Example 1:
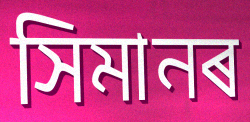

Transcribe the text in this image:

সিমানৰ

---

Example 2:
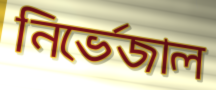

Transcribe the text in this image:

নিৰ্ভেজাল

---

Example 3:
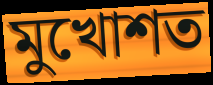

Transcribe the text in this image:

মুখোশত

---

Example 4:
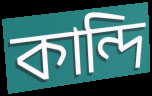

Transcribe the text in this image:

কান্দি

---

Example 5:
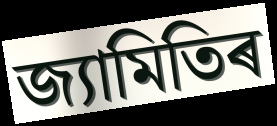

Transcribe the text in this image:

জ্যামিতিৰ